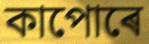
কাপোৰে